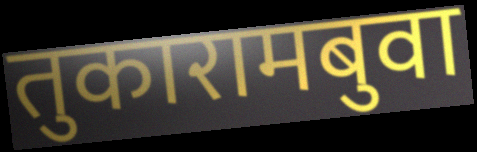
तुकारामबुवा